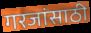
गरजांसाठी